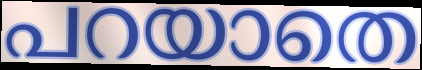
പറയാതെ